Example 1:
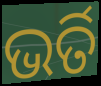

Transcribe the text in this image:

ଭର୍ତି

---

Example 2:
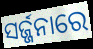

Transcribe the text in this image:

ସର୍ଜ୍ଜନାରେ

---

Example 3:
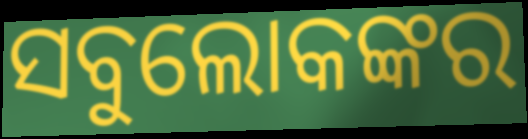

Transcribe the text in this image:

ସବୁଲୋକଙ୍କର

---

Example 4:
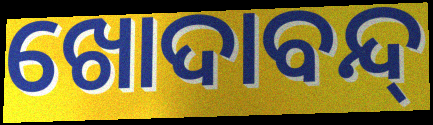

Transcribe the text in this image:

ଖୋଦାବନ୍ଦ୍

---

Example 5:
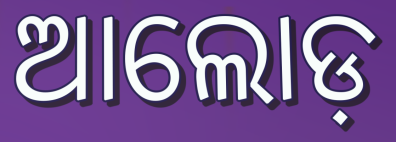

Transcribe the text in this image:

ଆଲୋଡ଼